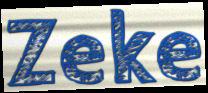
Zeke